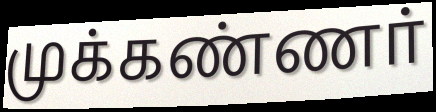
முக்கண்ணர்